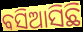
ବସିଆସିଛି